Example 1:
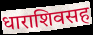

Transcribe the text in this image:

धाराशिवसह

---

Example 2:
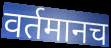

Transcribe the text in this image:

वर्तमानच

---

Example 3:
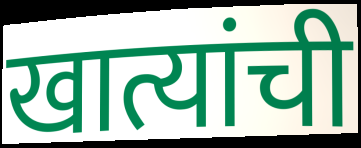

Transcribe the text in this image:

खात्यांची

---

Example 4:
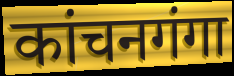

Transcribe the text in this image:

कांचनगंगा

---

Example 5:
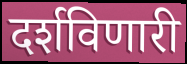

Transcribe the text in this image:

दर्शविणारी